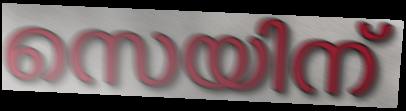
സെയിന്